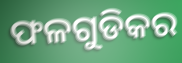
ଫଳଗୁଡିକର